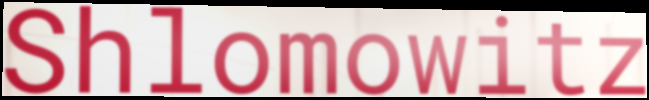
Shlomowitz